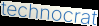
technocrat